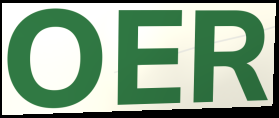
OER